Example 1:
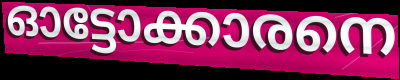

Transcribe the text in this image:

ഓട്ടോക്കാരനെ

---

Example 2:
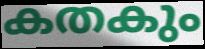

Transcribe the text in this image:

കതകും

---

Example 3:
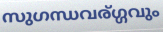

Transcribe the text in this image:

സുഗന്ധവര്ഗ്ഗവും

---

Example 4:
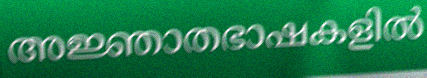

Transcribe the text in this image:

അജ്ഞാതഭാഷകളിൽ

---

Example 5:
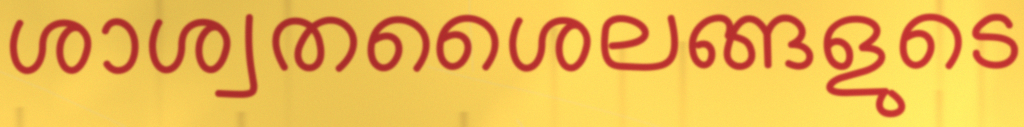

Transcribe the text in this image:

ശാശ്വതശൈലങ്ങളുടെ